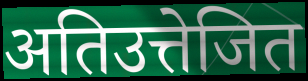
अतिउत्तेजित